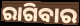
ରାଗିବାର